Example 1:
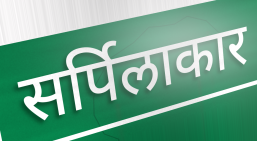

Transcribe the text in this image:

सर्पिलाकार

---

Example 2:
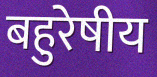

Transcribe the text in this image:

बहुरेषीय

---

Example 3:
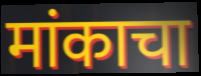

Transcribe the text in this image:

मांकाचा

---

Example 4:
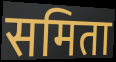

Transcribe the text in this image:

समिता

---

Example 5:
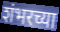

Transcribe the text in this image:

शंभरच्या